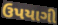
ઉપયાગી